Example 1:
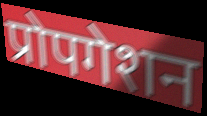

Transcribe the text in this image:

प्रोपगेशन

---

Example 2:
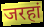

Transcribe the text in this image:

जरहां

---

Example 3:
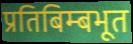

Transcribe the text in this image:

प्रतिबिम्बभूत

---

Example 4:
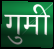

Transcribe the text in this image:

गुमी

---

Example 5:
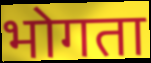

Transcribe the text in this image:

भोगता